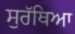
ਸੁਰੱਥਿਆ